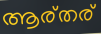
ആര്തര്